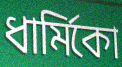
ধার্মিকো